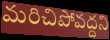
మరిచిపోవద్దని